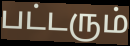
பட்டரும்